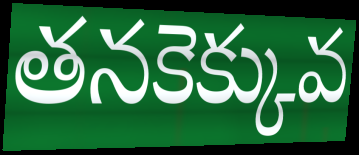
తనకెక్కువ